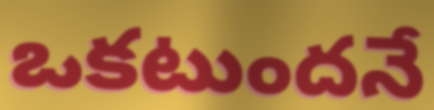
ఒకటుందనే